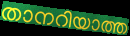
താനറിയാത്ത